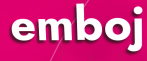
emboj